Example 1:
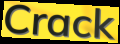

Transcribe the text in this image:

Crack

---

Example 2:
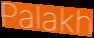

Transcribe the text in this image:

Palakh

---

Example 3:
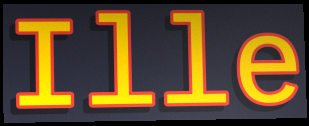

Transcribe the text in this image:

Ille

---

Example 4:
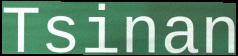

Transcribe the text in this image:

Tsinan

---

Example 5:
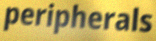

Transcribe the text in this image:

peripherals